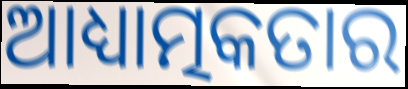
ଆଧ୍ୟାତ୍ମକତାର